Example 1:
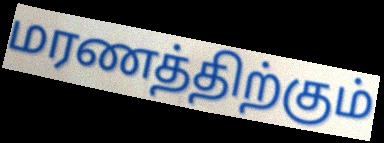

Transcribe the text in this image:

மரணத்திற்கும்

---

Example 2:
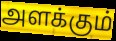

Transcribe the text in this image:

அளக்கும்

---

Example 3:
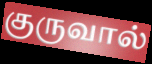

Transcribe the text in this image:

குருவால்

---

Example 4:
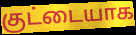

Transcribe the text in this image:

குட்டையாக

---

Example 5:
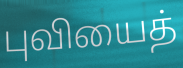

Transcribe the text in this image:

புவியைத்